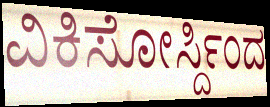
ವಿಕಿಸೋರ್ಸ್ದಿಂದ